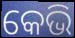
କେଭି